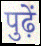
पुढ़ें